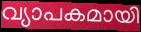
വ്യാപകമായി